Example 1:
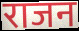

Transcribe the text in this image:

राजन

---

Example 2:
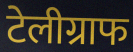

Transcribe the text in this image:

टेलीग्राफ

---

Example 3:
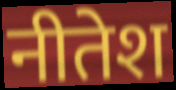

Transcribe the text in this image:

नीतेश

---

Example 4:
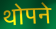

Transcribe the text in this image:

थोपने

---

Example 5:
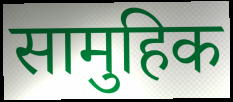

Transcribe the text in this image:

सामुहिक